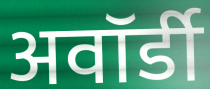
अवॉर्डी